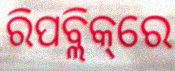
ରିପବ୍ଲିକ୍‌ରେ